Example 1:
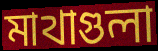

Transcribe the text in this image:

মাথাগুলা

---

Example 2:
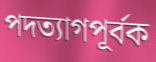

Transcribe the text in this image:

পদত্যাগপূর্বক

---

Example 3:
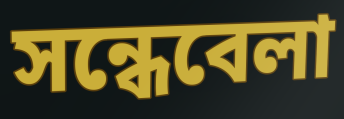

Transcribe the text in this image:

সন্ধেবেলা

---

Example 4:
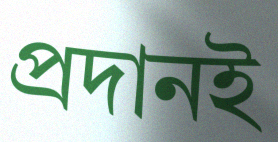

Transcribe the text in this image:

প্রদানই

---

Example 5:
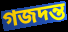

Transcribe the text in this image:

গজদন্ত